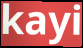
kayi